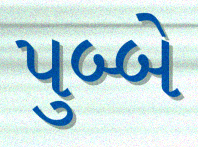
પુબ્બે